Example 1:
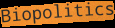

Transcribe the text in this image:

Biopolitics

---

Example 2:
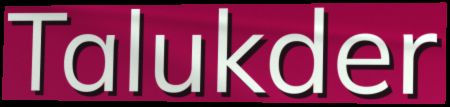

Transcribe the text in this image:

Talukder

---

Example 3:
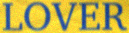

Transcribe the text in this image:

LOVER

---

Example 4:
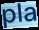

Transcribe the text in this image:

pla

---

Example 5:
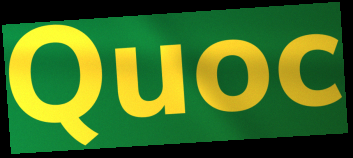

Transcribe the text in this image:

Quoc